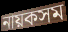
নায়কসম